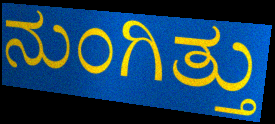
ನುಂಗಿತ್ತು